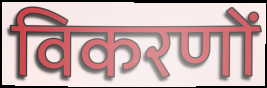
विकरणों